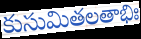
కుసుమితలతాభిః